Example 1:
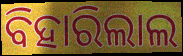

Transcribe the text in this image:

ବିହାରିଲାଲ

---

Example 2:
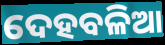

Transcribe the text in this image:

ଦେହବଳିଆ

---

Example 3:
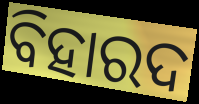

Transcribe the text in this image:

ବିହାରଦ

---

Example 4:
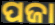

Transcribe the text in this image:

ପଜା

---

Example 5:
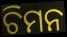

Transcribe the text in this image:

ଚିମନ